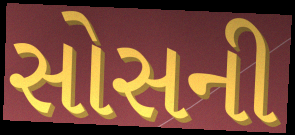
સોસની